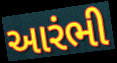
આરંભી